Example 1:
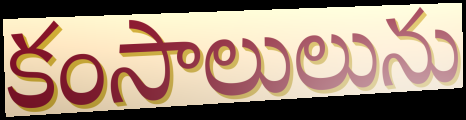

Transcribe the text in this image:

కంసాలులును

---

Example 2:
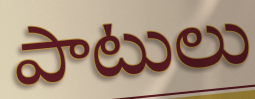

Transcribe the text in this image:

పాటులు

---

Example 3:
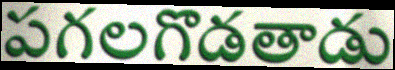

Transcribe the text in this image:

పగలగొడతాడు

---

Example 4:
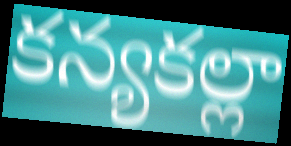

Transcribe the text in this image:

కన్యకల్లా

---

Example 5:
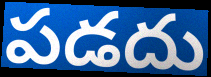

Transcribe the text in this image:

పడదు